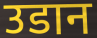
उडान